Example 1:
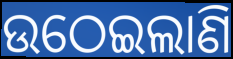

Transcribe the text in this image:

ଉଠେଇଲାଣି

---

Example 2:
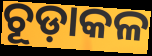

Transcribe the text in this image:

ଚୂଡ଼ାକଳ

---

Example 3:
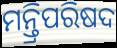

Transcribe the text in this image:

ମନ୍ତ୍ରିପରିଷଦ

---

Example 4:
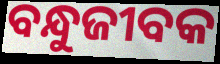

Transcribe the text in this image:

ବନ୍ଧୁଜୀବକ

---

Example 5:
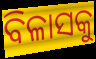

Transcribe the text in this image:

ବିଳାସକୁ